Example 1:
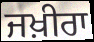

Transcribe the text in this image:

ਜਖ਼ੀਰਾ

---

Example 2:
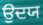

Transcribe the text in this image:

ਉਦਯ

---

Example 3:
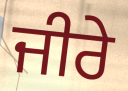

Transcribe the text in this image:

ਜੀਰੇ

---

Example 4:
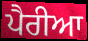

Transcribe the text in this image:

ਪੈਰੀਆ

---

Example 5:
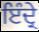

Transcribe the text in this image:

ਇੰਦ੍ਰੇ